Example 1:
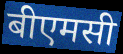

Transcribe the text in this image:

बीएमसी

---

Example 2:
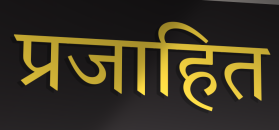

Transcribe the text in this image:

प्रजाहित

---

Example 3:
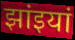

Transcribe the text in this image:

झांइयां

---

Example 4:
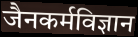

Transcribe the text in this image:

जैनकर्मविज्ञान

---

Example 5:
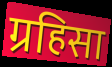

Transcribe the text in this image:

ग्रहिसा